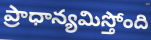
ప్రాధాన్యమిస్తోంది